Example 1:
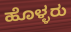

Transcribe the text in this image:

ಹೊಳ್ಳರು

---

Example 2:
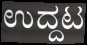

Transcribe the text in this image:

ಉದ್ದಟ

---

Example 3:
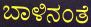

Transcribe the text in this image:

ಬಾಳಿನಂತೆ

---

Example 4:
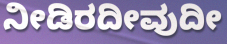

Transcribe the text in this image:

ನೀಡಿರದೀವುದೀ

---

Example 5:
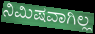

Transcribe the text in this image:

ನಿಮಿಷವಾಗಿಲ್ಲ